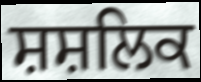
ਸ਼ਸ਼ਲਿਕ